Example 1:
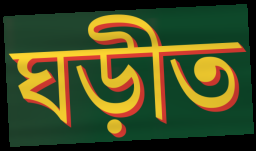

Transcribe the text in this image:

ঘড়ীত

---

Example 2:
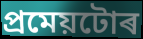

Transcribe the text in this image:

প্ৰমেয়টোৰ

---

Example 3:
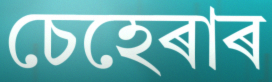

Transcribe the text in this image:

চেহেৰাৰ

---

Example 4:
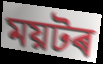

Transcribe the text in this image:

ময়টৰ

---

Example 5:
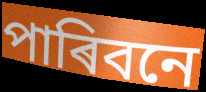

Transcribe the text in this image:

পাৰিবনে